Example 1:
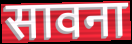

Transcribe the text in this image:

सावना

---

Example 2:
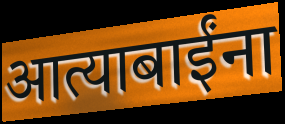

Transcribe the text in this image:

आत्याबाईंना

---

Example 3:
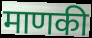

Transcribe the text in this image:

माणकी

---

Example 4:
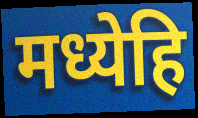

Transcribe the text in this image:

मध्येहि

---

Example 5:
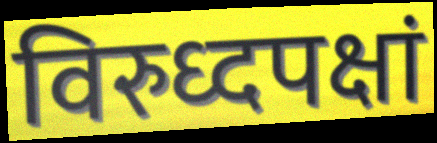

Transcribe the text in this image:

विरुध्दपक्षां